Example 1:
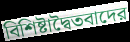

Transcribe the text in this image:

বিশিষ্টাদ্বৈতবাদের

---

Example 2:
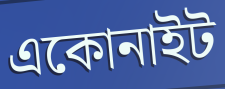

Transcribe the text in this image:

একোনাইট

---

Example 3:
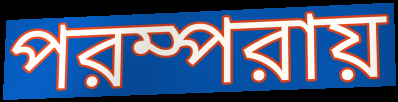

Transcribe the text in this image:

পরম্পরায়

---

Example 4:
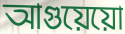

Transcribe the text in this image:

আগুয়েয়ো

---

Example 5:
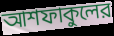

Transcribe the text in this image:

আশফাকুলের